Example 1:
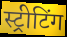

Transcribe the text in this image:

स्ट्रीटिंग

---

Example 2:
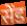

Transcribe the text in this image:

सेंड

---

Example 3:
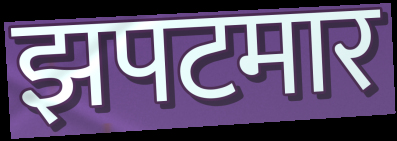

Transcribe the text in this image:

झपटमार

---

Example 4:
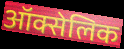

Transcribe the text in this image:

ऑक्सेलिक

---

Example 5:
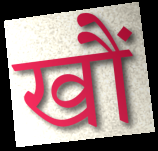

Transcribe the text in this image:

खौं